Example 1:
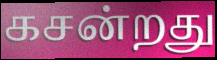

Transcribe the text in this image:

கசன்றது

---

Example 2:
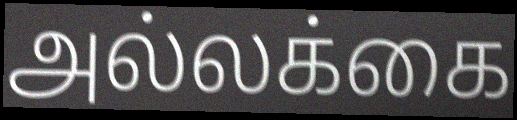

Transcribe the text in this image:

அல்லக்கை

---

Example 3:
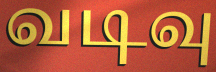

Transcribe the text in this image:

வடிவு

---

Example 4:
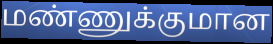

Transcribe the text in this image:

மண்ணுக்குமான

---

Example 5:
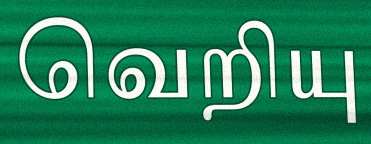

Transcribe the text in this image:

வெறியு